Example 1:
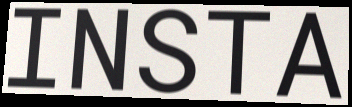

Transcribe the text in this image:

INSTA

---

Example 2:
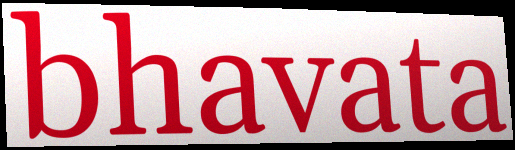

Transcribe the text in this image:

bhavata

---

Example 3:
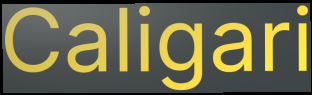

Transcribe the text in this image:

Caligari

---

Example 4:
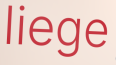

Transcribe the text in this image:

liege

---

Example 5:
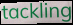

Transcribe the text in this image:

tackling